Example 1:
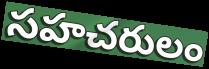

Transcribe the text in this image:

సహచరులం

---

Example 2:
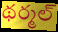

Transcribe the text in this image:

థర్మల్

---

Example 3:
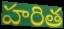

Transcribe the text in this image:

హరిత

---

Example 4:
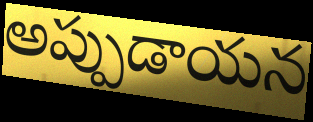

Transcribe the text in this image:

అప్పుడాయన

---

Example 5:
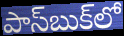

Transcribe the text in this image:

పాస్‌బుక్‌లో